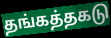
தங்கத்தகடு